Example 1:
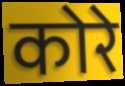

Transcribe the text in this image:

कोरे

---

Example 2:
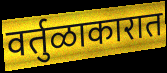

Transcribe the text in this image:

वर्तुळाकारात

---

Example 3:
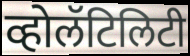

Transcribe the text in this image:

व्होलॅटिलिटी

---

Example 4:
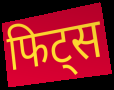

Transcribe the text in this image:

फिट्स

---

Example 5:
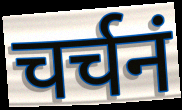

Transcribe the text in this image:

चर्चनं